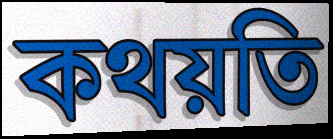
কথয়তি